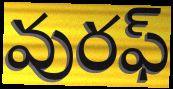
వురఫ్